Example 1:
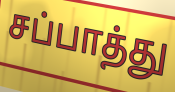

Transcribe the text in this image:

சப்பாத்து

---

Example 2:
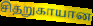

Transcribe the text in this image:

சிதறுகாயான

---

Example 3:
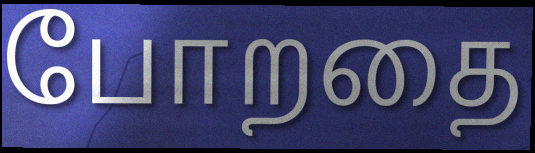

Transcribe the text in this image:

போறதை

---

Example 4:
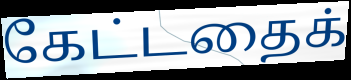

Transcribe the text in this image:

கேட்டதைக்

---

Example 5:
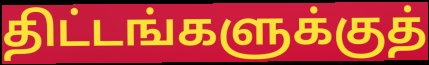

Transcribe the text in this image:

திட்டங்களுக்குத்